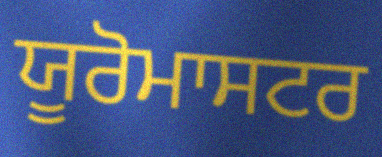
ਯੂਰੋਮਾਸਟਰ